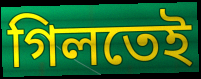
গিলতেই